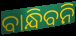
ବାନ୍ଧିବନି